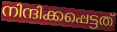
നിന്ദിക്കപ്പെട്ടത്